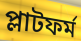
প্লাটফর্ম